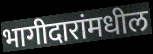
भागीदारांमधील